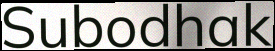
Subodhak